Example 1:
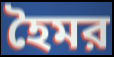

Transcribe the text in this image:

হৈমর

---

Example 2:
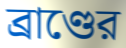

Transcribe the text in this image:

ব্রাণ্ডের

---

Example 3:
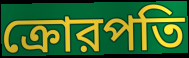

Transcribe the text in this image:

ক্রোরপতি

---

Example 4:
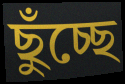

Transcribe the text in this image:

ছুঁচ্ছে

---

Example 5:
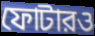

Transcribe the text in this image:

ফোটারও